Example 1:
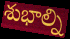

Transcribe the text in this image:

శుభాల్ని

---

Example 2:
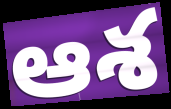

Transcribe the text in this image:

ఆశ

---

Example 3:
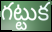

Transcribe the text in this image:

గట్టుక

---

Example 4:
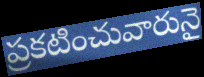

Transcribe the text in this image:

ప్రకటించువారునై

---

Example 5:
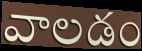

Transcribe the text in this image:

వాలడం